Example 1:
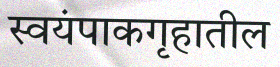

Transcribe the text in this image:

स्वयंपाकगृहातील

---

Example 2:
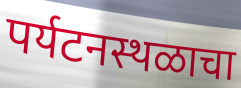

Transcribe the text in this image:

पर्यटनस्थळाचा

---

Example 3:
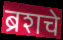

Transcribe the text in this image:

ब्रशचे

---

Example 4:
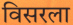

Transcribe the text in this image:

विसरला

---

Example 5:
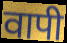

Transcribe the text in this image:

वापी